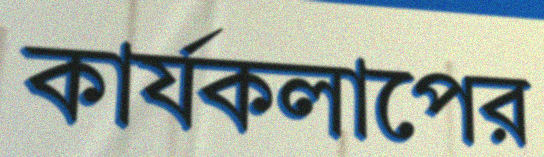
কার্যকলাপের